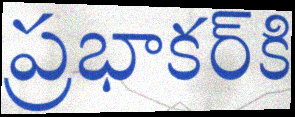
ప్రభాకర్‌కి